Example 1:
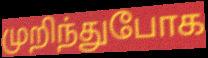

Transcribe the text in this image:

முறிந்துபோக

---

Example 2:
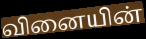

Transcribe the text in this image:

வினையின்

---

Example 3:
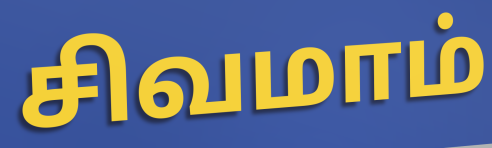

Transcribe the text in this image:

சிவமாம்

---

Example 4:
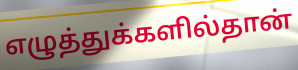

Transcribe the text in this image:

எழுத்துக்களில்தான்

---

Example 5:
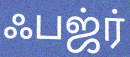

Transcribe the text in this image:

ஃபஜ்ர்